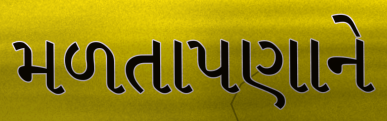
મળતાપણાને